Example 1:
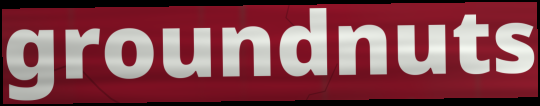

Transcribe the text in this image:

groundnuts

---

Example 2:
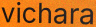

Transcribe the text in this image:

vichara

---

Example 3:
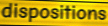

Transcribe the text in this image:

dispositions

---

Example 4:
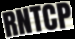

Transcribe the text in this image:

RNTCP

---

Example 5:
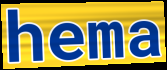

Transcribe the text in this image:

hema